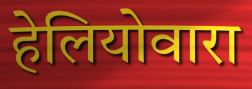
हेलियोवारा